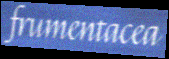
frumentacea